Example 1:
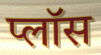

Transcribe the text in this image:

प्लॉस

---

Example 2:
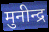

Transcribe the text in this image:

मुनीन्द्र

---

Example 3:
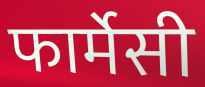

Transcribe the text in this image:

फार्मेसी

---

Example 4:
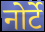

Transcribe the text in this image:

नोर्टे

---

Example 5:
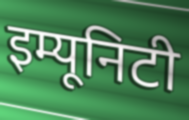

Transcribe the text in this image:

इम्यूनिटी